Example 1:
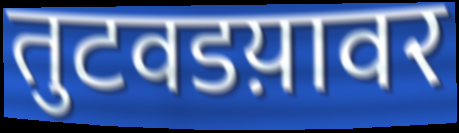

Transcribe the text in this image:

तुटवडय़ावर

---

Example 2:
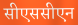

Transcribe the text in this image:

सीएससीएन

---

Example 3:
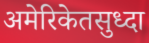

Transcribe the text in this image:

अमेरिकेतसुध्दा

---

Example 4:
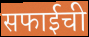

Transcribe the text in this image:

सफाईची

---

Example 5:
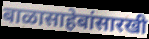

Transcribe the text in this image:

बाळासाहेबांसारखी